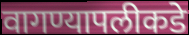
वागण्यापलीकडे